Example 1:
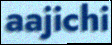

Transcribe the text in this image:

aajichi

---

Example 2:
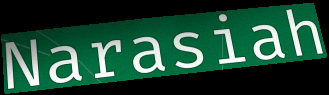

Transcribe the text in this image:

Narasiah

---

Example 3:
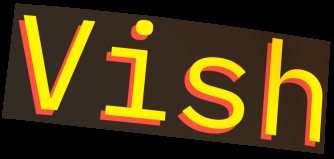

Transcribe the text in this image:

Vish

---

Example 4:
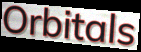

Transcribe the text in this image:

Orbitals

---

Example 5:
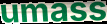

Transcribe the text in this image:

umass